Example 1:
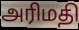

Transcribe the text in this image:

அரிமதி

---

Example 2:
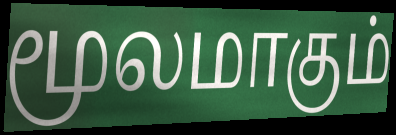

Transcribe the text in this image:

மூலமாகும்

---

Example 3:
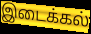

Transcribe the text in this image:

இடைக்கல்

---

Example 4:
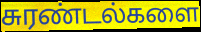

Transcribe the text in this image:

சுரண்டல்களை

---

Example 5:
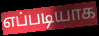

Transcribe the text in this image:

எப்படியாக